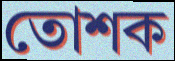
তোশক